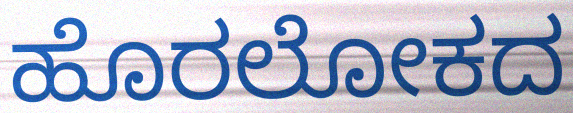
ಹೊರಲೋಕದ